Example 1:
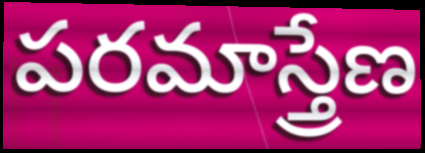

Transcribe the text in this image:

పరమాస్త్రేణ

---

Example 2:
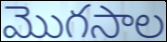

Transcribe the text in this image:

మొగసాల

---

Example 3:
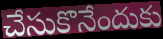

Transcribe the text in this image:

చేసుకొనేందుకు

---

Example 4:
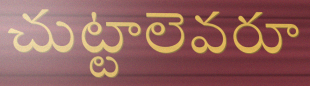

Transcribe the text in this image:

చుట్టాలెవరూ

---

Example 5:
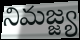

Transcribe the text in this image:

నిమజ్జ్య